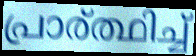
പ്രാര്ത്ഥിച്ച്